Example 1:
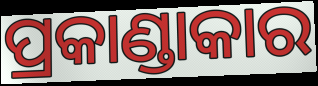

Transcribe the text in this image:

ପ୍ରକାଣ୍ଡାକାର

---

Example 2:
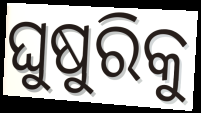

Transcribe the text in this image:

ଘୁଷୁରିକୁ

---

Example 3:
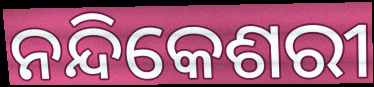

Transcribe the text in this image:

ନନ୍ଦିକେଶରୀ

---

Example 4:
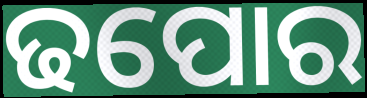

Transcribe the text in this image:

ଢପୋର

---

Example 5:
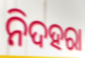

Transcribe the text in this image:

ନିଦହରା